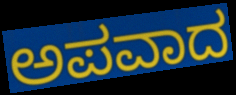
ಅಪವಾದ